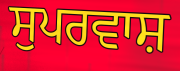
ਸੁਪਰਵਾਸ਼